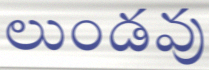
లుండవు